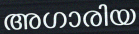
അഗാരിയ